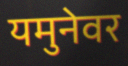
यमुनेवर